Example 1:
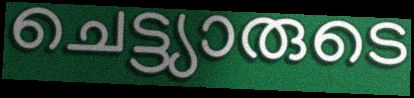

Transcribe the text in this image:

ചെട്ട്യാരുടെ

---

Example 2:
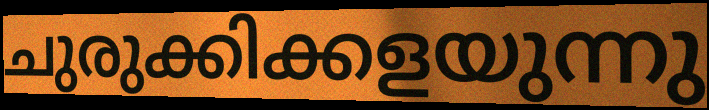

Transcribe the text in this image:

ചുരുക്കിക്കളയുന്നു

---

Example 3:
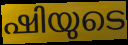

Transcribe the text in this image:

ഷിയുടെ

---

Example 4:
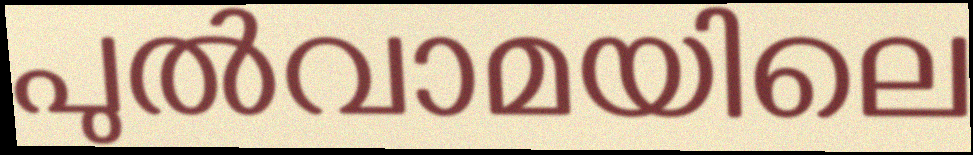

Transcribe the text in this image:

പുൽവാമയിലെ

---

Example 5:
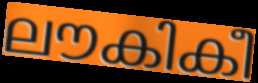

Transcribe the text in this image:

ലൗകികീ